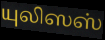
யுலிஸஸ்